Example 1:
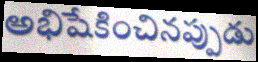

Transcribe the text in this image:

అభిషేకించినప్పుడు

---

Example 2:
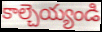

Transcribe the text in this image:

కాల్చెయ్యండి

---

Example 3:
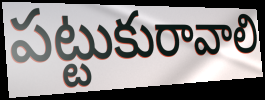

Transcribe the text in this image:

పట్టుకురావాలి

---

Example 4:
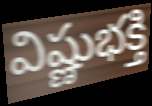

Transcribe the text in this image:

విష్ణుభక్తి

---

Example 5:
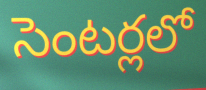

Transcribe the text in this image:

సెంటర్లలో